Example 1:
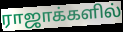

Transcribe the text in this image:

ராஜாக்களில்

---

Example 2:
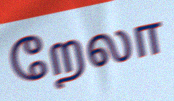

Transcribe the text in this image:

றேலா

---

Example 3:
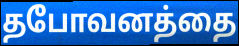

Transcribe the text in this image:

தபோவனத்தை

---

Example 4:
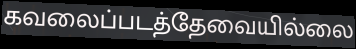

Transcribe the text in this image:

கவலைப்படத்தேவையில்லை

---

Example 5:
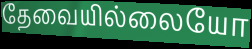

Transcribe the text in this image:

தேவையில்லையோ